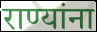
राण्यांना